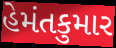
હેમંતકુમાર